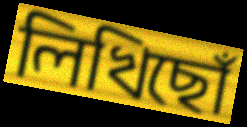
লিখিছোঁ